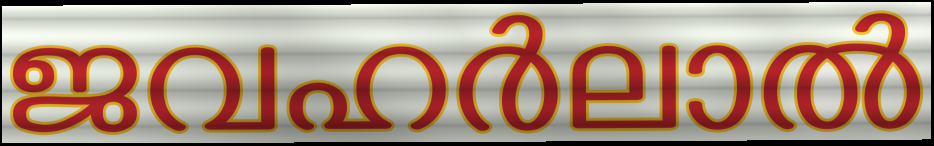
ജവഹർലാൽ